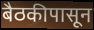
बैठकीपासून